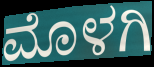
ಮೊಳಗಿ